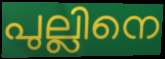
പുല്ലിനെ